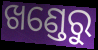
ଖଣ୍ଡେରୁ